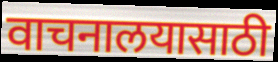
वाचनालयासाठी